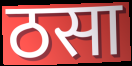
ठसा